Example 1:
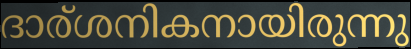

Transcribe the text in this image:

ദാര്ശനികനായിരുന്നു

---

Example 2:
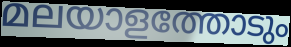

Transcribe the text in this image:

മലയാളത്തോടും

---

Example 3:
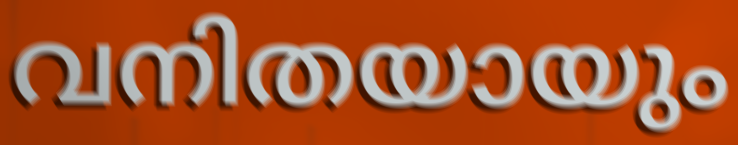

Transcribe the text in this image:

വനിതയായും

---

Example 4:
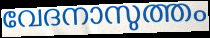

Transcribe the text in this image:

വേദനാസുത്തം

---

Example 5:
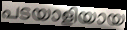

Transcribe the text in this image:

പടയാളിയായ